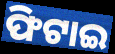
ଫିଟାଇ